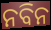
ନବିନ